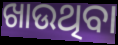
ଖାଉଥିବା